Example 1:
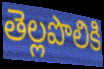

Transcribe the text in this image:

తెల్లపొలికి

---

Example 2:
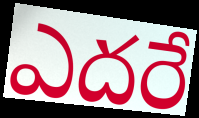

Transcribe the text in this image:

ఎదరే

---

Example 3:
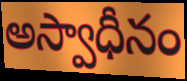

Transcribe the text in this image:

అస్వాధీనం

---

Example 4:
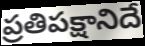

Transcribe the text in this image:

ప్రతిపక్షానిదే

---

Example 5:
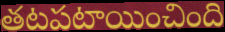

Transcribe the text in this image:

తటపటాయించింది